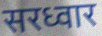
सरध्वार